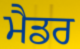
ਮੈਡਰ